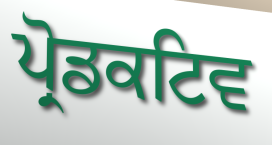
ਪ੍ਰੋਡਕਟਿਵ